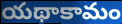
యథాకామం